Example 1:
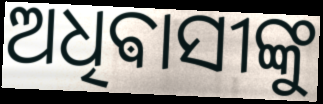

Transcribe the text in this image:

ଅଧିଵାସୀଙ୍କୁ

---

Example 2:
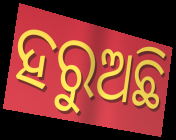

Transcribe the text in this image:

ହରୁଅଛି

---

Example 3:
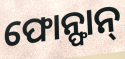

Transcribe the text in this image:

ଫୋନ୍ଫାନ୍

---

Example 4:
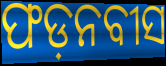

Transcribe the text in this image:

ଫଡ଼ନବୀସ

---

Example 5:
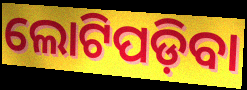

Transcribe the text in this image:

ଲୋଟିପଡ଼ିବା